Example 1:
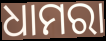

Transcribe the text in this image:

ଧାମରା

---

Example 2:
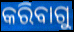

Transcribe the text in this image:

କରିବାଗୁ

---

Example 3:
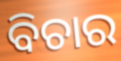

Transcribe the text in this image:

ବିଚାର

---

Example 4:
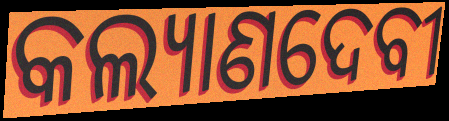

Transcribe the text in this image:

କଲ୍ୟାଣଦେବୀ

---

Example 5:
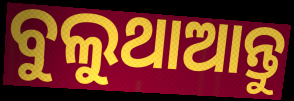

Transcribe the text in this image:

ବୁଲୁଥାଆନ୍ତୁ